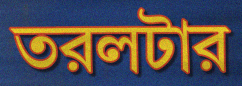
তরলটার